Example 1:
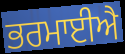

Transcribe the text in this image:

ਭਰਮਾਈਐ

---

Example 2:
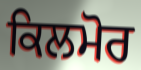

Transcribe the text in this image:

ਕਿਲਮੋਰ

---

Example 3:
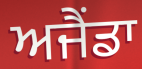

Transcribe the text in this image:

ਅਜੈਂਡਾ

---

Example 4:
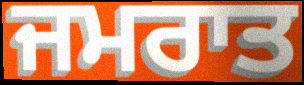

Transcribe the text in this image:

ਜਮਰਾਤ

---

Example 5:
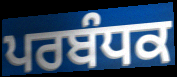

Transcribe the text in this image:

ਪਰਬੰਧਕ